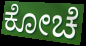
ಕೋಚೆ